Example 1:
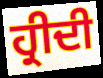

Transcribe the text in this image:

ਹ੍ਰੀਦੀ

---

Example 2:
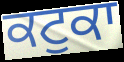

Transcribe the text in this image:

ਕਟੁਕਾ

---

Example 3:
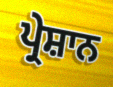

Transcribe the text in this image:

ਪ੍ਰੇਸ਼ਾਨ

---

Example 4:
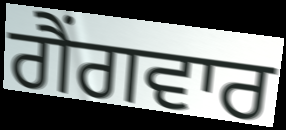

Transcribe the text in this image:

ਗੈਂਗਵਾਰ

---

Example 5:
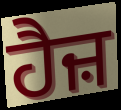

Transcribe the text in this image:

ਹੈਜ਼